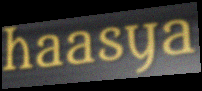
haasya